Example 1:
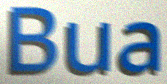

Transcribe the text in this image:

Bua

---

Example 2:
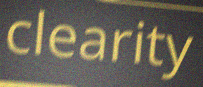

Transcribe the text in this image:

clearity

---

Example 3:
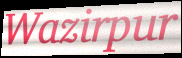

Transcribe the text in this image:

Wazirpur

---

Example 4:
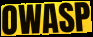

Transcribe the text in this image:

OWASP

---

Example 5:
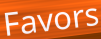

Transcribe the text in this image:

Favors